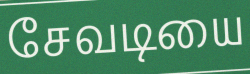
சேவடியை